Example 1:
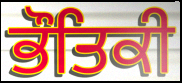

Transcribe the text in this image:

ਭੌਤਿਕੀ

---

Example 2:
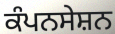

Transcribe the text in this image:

ਕੰਪਨਸੇਸ਼ਨ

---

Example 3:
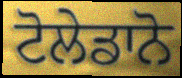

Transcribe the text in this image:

ਟੋਲੇਡਾਨੋ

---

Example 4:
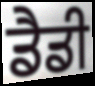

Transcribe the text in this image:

ਡੈਡੀ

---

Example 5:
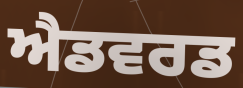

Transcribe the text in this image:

ਐਡਵਰਡ